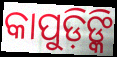
କାପୁଡ଼ିଙ୍କି